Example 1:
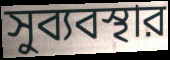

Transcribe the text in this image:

সুব্যবস্থার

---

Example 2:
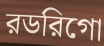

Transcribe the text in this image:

রডরিগো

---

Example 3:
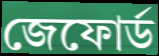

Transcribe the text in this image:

জেফোর্ড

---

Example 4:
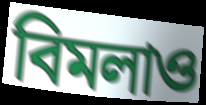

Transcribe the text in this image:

বিমলাও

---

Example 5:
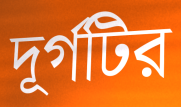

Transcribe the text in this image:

দূর্গটির